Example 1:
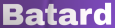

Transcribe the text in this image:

Batard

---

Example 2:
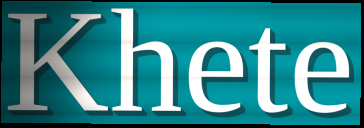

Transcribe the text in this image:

Khete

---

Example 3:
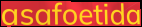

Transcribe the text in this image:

asafoetida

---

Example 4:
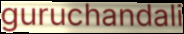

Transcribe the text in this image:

guruchandali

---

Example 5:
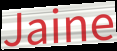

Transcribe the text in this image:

Jaine